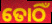
ତୋଠିଁ